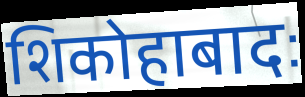
शिकोहाबादः